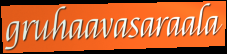
gruhaavasaraala